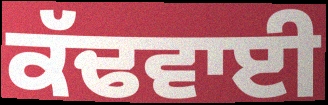
ਕੱਢਵਾਈ